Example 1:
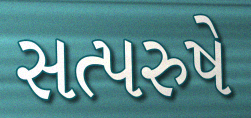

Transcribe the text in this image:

સત્પરુષે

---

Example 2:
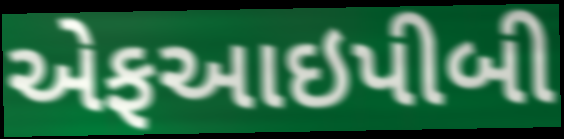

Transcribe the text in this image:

એફઆઇપીબી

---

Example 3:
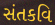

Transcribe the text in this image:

સંતકવિ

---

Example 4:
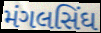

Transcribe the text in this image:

મંગલસિંઘ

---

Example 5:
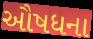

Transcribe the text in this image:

ઔષધના